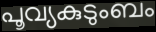
പൂവ്യകുടുംബം